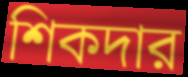
শিকদার